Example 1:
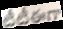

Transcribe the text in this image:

టీటీఈగా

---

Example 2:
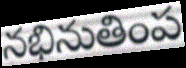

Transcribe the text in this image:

నభినుతింప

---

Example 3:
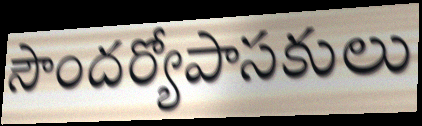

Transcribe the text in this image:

సౌందర్యోపాసకులు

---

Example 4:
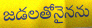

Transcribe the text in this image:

జడలతోనైనను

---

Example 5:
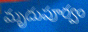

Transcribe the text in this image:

మృదుపూర్వం